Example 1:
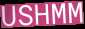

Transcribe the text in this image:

USHMM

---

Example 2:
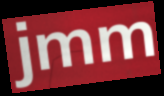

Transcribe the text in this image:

jmm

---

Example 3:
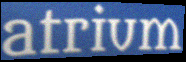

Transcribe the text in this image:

atrium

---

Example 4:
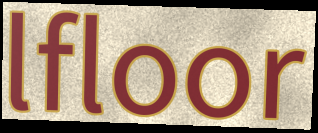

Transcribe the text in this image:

lfloor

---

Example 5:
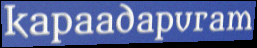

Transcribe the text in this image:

kapaadapuram